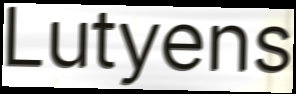
Lutyens